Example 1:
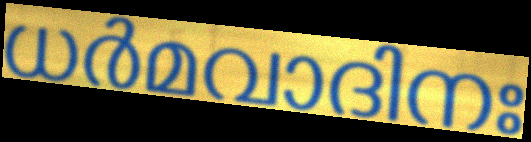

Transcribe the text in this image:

ധർമവാദിനഃ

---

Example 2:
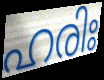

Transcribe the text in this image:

ഹരിഃ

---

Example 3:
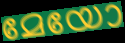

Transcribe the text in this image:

മേയോ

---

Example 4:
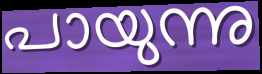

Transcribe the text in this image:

പായുന്നു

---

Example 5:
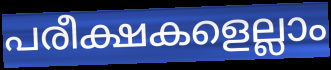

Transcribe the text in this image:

പരീക്ഷകളെല്ലാം